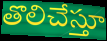
తొలిచేస్తూ